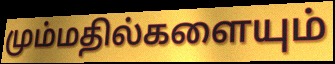
மும்மதில்களையும்